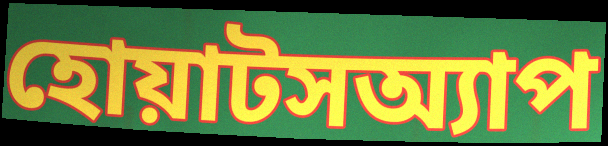
হোয়াটসঅ্যাপ